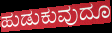
ಹುಡುಕುವುದೂ